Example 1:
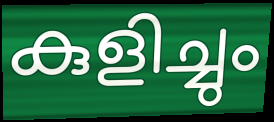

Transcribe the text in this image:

കുളിച്ചും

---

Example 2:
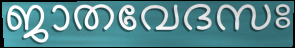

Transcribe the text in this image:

ജാതവേദസഃ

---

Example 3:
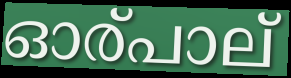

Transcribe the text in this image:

ഓര്പാല്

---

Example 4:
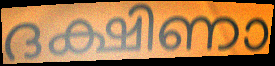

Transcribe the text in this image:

ദക്ഷിണാ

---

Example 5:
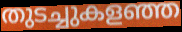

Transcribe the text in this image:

തുടച്ചുകളഞ്ഞ